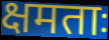
क्षमताः